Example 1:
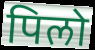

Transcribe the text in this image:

पिलो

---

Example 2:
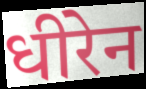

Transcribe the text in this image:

धीरेन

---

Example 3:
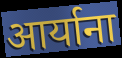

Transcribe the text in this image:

आर्याना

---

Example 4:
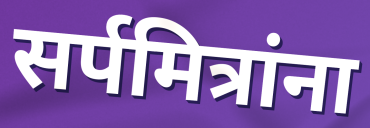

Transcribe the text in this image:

सर्पमित्रांना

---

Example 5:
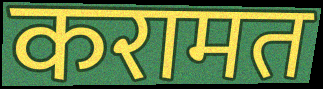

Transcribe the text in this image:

करामत